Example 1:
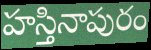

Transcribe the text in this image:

హస్తినాపురం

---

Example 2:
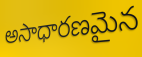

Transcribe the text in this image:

అసాధారణమైన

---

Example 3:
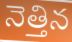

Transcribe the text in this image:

నెత్తిన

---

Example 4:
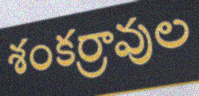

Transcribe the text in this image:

శంకర్రావుల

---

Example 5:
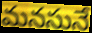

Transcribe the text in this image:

మనసునే